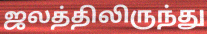
ஜலத்திலிருந்து